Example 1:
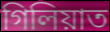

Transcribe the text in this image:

গিলিয়াত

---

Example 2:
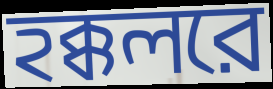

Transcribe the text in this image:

হক্কলরে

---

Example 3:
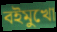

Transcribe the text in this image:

বইমুখো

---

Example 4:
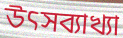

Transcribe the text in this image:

উৎসব্যাখ্যা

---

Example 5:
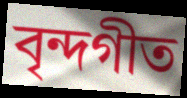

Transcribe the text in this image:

বৃন্দগীত